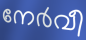
നേർവീ